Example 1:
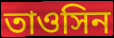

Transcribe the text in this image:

তাওসিন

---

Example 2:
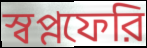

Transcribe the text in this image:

স্বপ্নফেরি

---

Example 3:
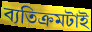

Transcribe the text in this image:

ব্যতিক্রমটাই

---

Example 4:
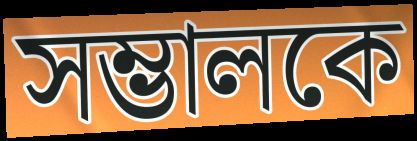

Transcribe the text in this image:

সম্ভালকে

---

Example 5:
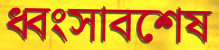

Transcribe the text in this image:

ধ্বংসাবশেষ